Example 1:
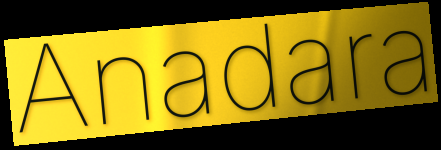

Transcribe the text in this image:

Anadara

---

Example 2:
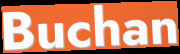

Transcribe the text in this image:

Buchan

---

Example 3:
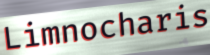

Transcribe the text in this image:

Limnocharis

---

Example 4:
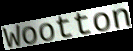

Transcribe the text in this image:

Wootton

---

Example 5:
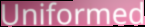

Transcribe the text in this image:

Uniformed